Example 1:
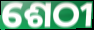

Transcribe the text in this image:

ଶେଠୀ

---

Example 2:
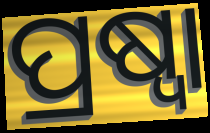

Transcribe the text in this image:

ପ୍ରଷ୍ୱା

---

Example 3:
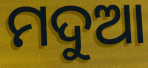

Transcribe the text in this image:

ମଦୁଆ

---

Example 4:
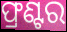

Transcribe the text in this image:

ଫ୍ରଣ୍ଟର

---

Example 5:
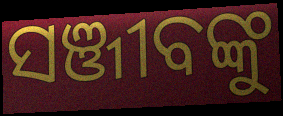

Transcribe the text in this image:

ସଞ୍ଜୀବଙ୍କୁ